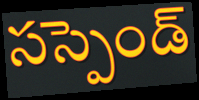
సస్పెండ్